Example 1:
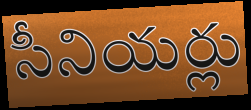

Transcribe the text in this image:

సీనియర్లు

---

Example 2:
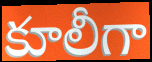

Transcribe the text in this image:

కూలీగా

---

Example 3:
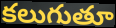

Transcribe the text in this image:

కలుగుతూ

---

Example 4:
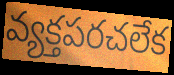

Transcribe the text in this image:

వ్యక్తపరచలేక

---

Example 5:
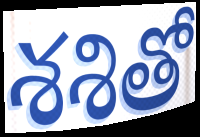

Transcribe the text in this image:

శశితో